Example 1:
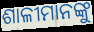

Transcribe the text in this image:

ଶାଳୀମାନଙ୍କୁ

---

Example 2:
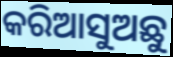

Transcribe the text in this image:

କରିଆସୁଅଛୁ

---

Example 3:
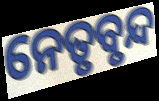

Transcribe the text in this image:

ନେତୃବୃନ୍ଦ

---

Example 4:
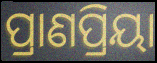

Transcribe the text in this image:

ପ୍ରାଣପ୍ରିୟା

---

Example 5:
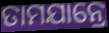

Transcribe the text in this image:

ତାମଯାନ୍ରେ